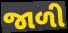
જાળી